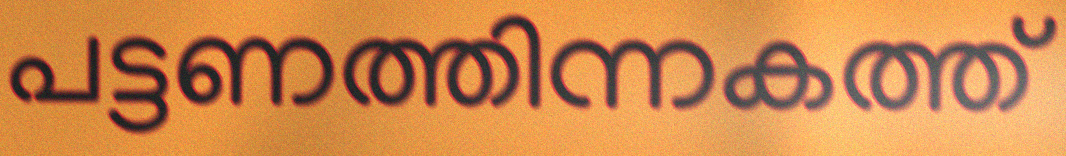
പട്ടണത്തിന്നകത്ത്